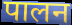
पालन